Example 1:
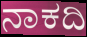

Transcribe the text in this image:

ನಾಕದಿ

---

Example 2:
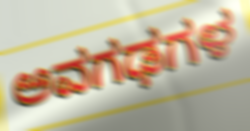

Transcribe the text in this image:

ಅವಗಢಗಳ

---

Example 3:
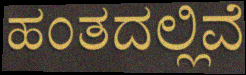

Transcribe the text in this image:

ಹಂತದಲ್ಲಿವೆ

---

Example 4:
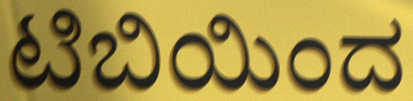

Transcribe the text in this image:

ಟಿಬಿಯಿಂದ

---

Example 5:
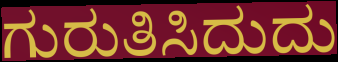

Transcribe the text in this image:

ಗುರುತಿಸಿದುದು